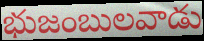
భుజంబులవాడు